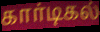
கார்டிகல்